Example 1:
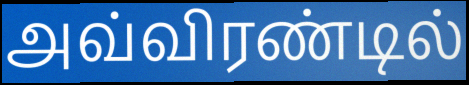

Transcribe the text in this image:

அவ்விரண்டில்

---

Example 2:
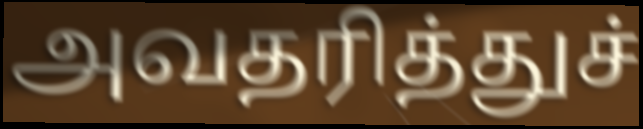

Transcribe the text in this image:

அவதரித்துச்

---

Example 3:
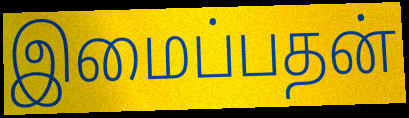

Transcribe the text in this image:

இமைப்பதன்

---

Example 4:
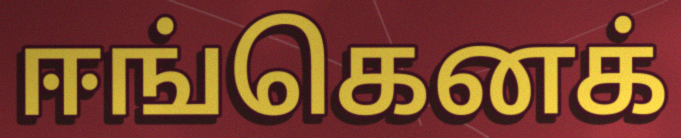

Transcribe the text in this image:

ஈங்கெனக்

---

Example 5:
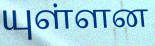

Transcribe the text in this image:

யுள்ளன